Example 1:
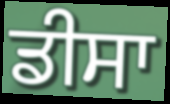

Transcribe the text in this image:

ਡੀਸਾ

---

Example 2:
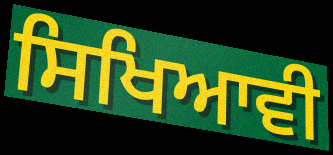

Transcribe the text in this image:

ਸਿਖਿਆਵੀ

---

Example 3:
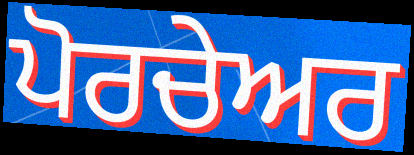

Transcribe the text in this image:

ਪੋਰਚੇਅਰ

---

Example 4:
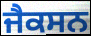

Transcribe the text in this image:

ਜੈਕਸਨ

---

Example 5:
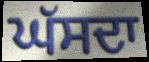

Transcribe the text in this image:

ਘੱਸਦਾ